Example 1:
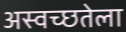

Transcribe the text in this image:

अस्वच्छतेला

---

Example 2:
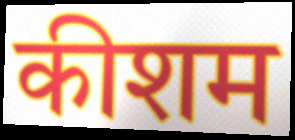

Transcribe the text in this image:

कीशम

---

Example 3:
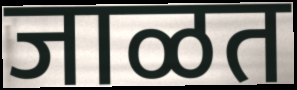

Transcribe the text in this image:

जाळत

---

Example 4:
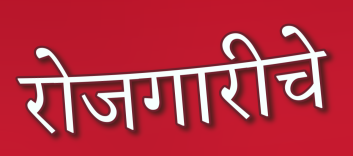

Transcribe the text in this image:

रोजगारीचे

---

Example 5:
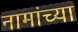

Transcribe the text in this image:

नामांच्या